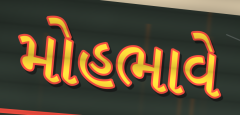
મોહભાવે